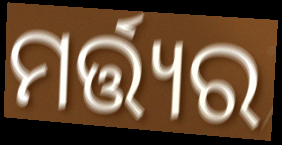
ମର୍ତ୍ତ୍ୟର